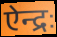
ऐन्द्रः